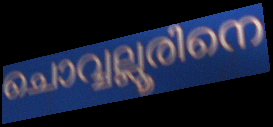
ചൊവ്വല്ലൂരിനെ